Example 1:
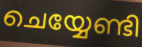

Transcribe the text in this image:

ചെയ്യേണ്ടി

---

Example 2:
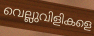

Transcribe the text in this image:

വെല്ലുവിളികളെ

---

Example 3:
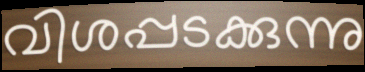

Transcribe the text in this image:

വിശപ്പടക്കുന്നു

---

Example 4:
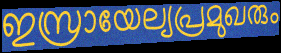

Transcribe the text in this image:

ഇസ്രായേല്യപ്രമുഖരും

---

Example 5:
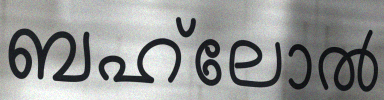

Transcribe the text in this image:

ബഹ്‌ലോൽ